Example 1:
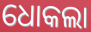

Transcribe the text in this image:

ଧୋକଲା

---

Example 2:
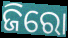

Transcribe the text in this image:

ଜିରୋ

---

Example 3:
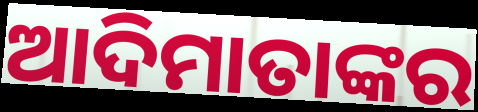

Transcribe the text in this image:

ଆଦିମାତାଙ୍କର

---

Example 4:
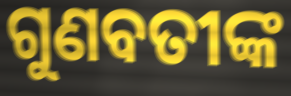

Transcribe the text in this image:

ଗୁଣବତୀଙ୍କ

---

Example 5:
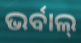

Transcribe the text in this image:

ଭର୍ବାଲ୍